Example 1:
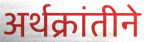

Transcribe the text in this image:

अर्थक्रांतीने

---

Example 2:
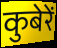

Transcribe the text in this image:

कुबेरें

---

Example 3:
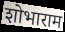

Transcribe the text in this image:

शोभाराम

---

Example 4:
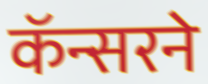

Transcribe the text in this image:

कॅन्सरने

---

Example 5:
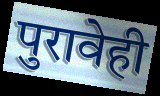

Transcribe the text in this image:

पुरावेही